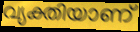
വ്യക്തിയാണ്